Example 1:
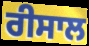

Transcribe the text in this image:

ਰੀਸਾਲ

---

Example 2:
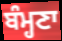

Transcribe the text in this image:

ਬੰਮ੍ਹਣਾ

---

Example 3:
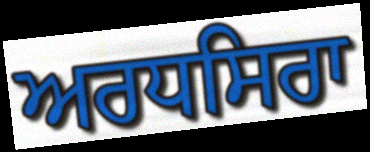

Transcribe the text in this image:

ਅਰਧਸਿਰਾ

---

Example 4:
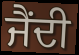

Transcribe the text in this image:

ਜੈਂਦੀ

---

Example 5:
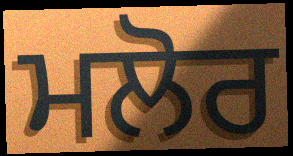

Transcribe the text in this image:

ਮਲੋਰ